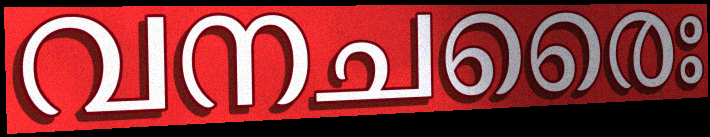
വനചരൈഃ